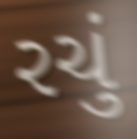
રચું